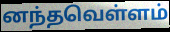
னந்தவெள்ளம்